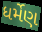
ધર્મેણ